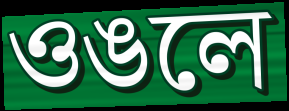
ওঙলে